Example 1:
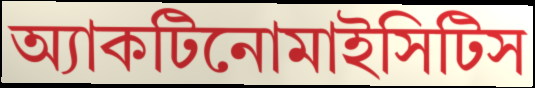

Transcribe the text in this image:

অ্যাকটিনোমাইসিটিস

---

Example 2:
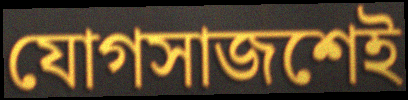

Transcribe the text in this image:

যোগসাজশেই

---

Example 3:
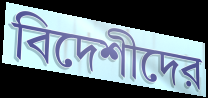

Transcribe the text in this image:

বিদেশীদের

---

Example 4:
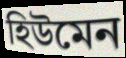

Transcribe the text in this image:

হিউমেন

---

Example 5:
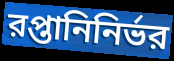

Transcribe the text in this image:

রপ্তানিনির্ভর